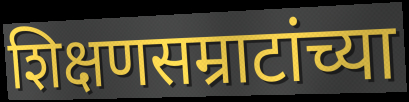
शिक्षणसम्राटांच्या